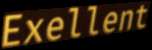
Exellent